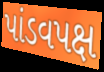
પાંડવપક્ષ